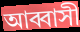
আব্বাসী